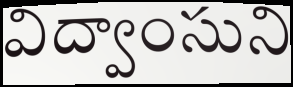
విద్వాంసుని